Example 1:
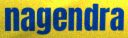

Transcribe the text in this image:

nagendra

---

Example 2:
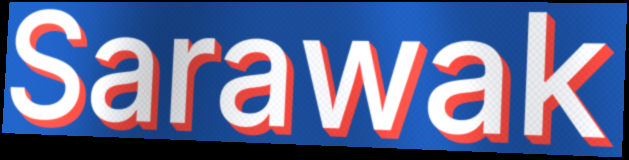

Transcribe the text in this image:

Sarawak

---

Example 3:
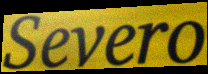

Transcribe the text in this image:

Severo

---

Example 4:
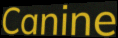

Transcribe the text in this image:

Canine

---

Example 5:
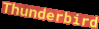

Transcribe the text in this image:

Thunderbird